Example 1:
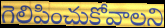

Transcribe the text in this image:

గెలిపించుకోవాలని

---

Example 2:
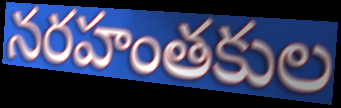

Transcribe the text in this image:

నరహంతకుల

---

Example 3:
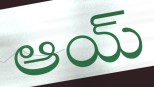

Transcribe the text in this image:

ఆయ్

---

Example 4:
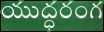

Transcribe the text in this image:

యుద్ధరంగ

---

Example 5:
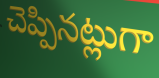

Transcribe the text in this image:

చెప్పినట్లుగా